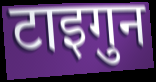
टाइगुन